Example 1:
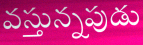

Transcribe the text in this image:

వస్తున్నపుడు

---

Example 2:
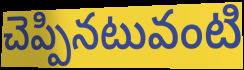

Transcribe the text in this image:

చెప్పినటువంటి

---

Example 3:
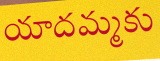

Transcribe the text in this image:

యాదమ్మకు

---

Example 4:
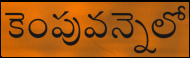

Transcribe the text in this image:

కెంపువన్నెలో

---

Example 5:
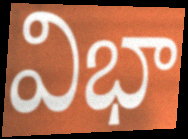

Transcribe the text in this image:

విభా